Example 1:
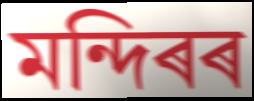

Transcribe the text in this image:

মন্দিৰৰ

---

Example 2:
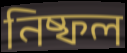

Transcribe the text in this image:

নিষ্ফল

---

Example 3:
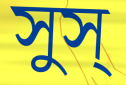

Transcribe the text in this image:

সুস্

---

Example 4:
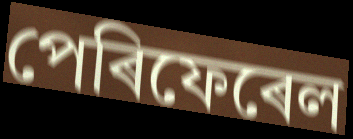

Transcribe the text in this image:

পেৰিফেৰেল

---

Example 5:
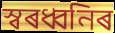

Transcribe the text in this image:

স্বৰধ্বনিৰ